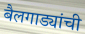
बैलगाड्यांची